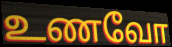
உணவோ